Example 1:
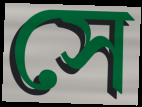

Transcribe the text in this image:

সে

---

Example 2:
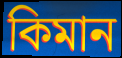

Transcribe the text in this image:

কিমান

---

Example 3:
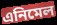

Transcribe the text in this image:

এনিমেল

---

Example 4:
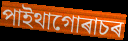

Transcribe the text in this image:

পাইথাগোৰাচৰ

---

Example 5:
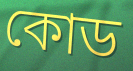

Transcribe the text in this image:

কোড